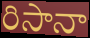
రిసానా